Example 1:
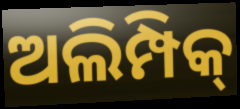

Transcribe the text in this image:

ଅଲିମ୍ପିକ୍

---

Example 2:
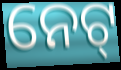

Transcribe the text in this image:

ନେଟ୍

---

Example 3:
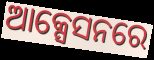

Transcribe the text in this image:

ଆକ୍ସେସନରେ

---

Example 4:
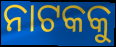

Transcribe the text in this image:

ନାଟକକୁ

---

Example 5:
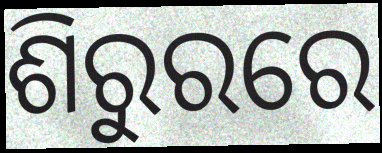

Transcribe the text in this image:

ଶିରୁରରେ